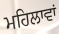
ਮਹਿਲਾਵਾਂ